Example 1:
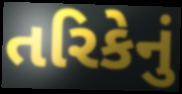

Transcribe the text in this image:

તરિકેનું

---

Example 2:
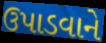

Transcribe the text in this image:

ઉપાડવાને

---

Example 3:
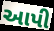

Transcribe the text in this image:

આપી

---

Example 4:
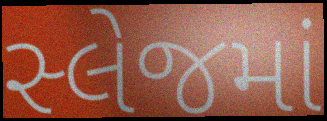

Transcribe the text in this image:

સ્લેજમાં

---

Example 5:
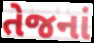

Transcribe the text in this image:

તેજનાં